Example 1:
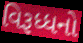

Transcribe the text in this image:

વિરૂધ્ધનો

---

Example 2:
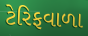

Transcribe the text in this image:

ટેરિફવાળા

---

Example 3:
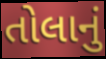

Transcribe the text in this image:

તોલાનું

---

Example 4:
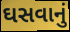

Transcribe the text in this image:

ઘસવાનું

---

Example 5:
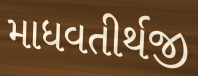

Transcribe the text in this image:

માધવતીર્થજી